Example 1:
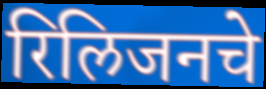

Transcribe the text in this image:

रिलिजनचे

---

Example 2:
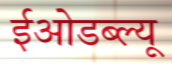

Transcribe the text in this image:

ईओडब्ल्यू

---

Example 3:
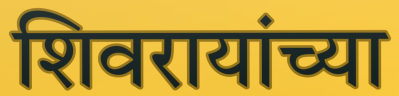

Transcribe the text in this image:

शिवरायांच्या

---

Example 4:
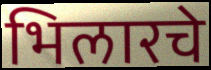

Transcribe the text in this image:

भिलारचे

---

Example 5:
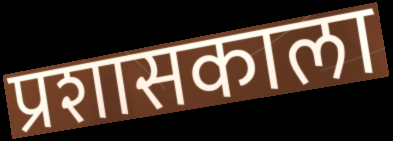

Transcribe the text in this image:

प्रशासकाला